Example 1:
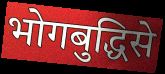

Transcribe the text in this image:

भोगबुद्धिसे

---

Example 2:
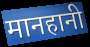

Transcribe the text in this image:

मानहानी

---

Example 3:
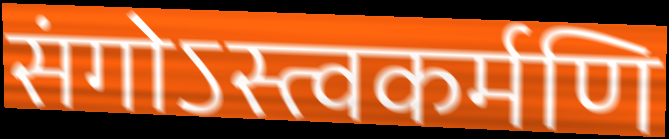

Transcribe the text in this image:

संगोऽस्त्वकर्मणि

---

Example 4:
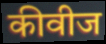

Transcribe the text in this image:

कीवीज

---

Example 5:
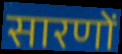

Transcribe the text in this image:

सारणों